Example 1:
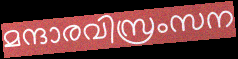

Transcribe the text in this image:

മന്ദാരവിസ്രംസന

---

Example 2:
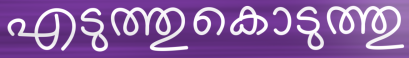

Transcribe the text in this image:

എടുത്തുകൊടുത്തു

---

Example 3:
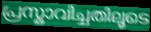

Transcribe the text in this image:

പ്രസ്താവിച്ചതിലൂടെ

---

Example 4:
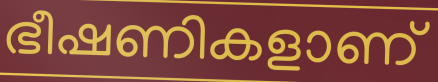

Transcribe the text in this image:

ഭീഷണികളാണ്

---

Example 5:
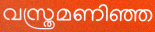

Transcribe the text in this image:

വസ്ത്രമണിഞ്ഞ